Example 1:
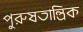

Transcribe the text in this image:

পুৰুষতান্ত্ৰিক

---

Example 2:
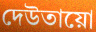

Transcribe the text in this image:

দেউতায়ো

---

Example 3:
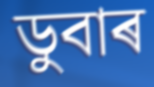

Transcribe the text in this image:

ডুবাৰ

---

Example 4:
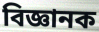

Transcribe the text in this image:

বিজ্ঞানক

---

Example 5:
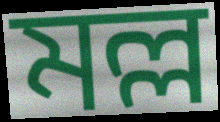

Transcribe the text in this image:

মল্ল